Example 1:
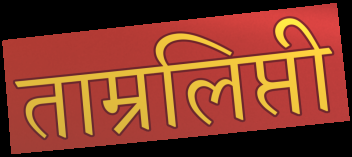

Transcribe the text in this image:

ताम्रलिप्ती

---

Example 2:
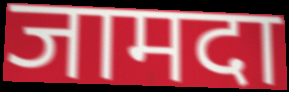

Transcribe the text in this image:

जामदा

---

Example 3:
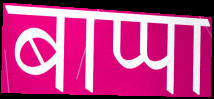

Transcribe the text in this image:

बाप्पा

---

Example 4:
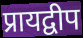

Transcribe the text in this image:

प्रायद्वीप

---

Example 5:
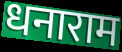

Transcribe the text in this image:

धनाराम